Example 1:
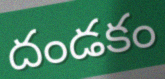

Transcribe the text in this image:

దండకం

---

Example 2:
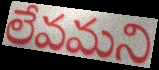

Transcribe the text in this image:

లేవమని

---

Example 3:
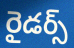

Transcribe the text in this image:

రైడర్స్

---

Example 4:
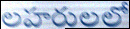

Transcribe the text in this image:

లహరులలో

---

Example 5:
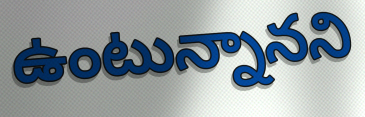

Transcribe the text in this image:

ఉంటున్నానని